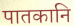
पातकानि